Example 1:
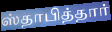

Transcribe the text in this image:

ஸ்தாபித்தார்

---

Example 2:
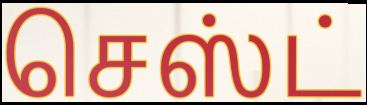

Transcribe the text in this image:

செஸ்ட்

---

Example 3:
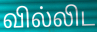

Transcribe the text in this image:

வில்லிட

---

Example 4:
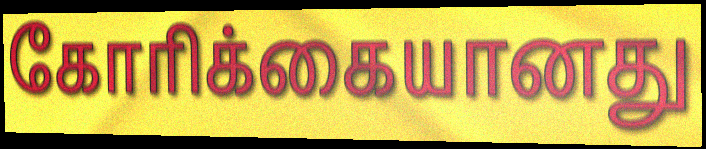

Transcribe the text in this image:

கோரிக்கையானது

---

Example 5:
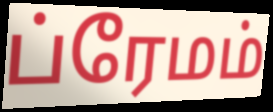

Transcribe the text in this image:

ப்ரேமம்